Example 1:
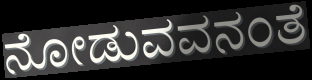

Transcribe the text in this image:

ನೋಡುವವನಂತೆ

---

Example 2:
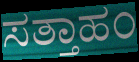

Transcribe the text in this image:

ಸತ್ತಾಹಂ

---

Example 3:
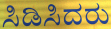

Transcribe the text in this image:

ಸಿಡಿಸಿದರು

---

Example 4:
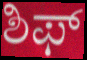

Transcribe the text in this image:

ಶಿಫ್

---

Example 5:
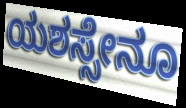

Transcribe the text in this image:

ಯಶಸ್ಸೇನೂ